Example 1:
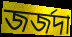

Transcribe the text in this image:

জর্জদা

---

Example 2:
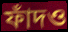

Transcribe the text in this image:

ফাঁদও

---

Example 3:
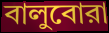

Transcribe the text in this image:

বালুবোরা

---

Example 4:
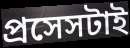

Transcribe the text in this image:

প্রসেসটাই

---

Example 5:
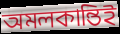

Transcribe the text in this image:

অমলকান্তিই